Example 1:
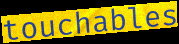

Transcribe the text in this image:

touchables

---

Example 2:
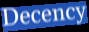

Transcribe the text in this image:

Decency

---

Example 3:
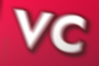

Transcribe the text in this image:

VC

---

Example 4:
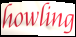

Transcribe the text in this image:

howling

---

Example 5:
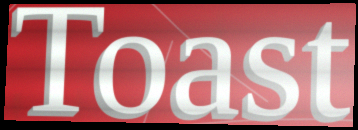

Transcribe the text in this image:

Toast